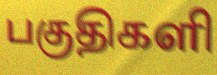
பகுதிகளி